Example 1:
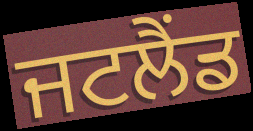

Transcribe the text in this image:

ਜਟਲੈਂਡ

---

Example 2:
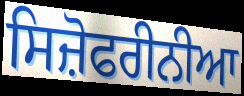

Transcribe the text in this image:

ਸਿਜ਼ੋਫਰੀਨੀਆ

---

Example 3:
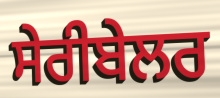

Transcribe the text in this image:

ਸੇਰੀਬੇਲਰ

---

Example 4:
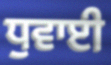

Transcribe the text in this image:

ਧੁਵਾਈ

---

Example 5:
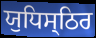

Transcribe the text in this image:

ਯੁਧਿਸ੍ਠਿਰ